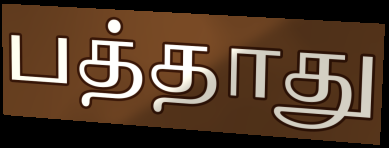
பத்தாது